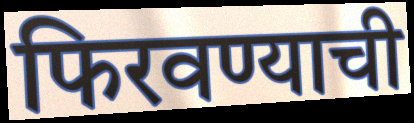
फिरवण्याची